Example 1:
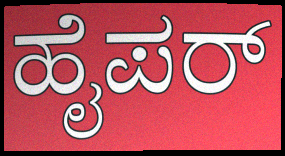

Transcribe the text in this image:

ಹೈಪರ್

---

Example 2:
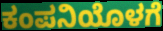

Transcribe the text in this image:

ಕಂಪನಿಯೊಳಗೆ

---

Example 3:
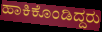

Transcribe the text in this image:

ಹಾಕಿಕೊಂಡಿದ್ದರು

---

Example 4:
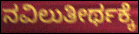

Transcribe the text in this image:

ನವಿಲುತೀರ್ಥಕ್ಕೆ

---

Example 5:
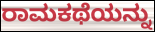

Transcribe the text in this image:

ರಾಮಕಥೆಯನ್ನು